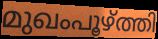
മുഖംപൂഴ്ത്തി